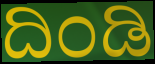
ದಿಂಡಿ